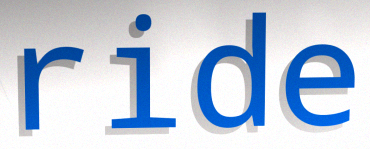
ride